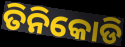
ତିନିକୋଡି